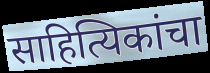
साहित्यिकांचा